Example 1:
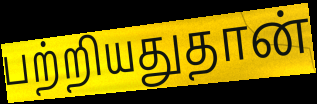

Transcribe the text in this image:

பற்றியதுதான்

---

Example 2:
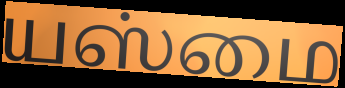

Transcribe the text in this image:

யஸ்மை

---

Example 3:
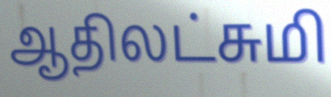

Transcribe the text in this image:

ஆதிலட்சுமி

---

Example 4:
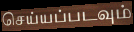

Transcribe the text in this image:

செய்யப்படவும்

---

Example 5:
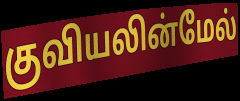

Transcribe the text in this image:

குவியலின்மேல்